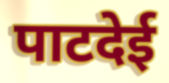
पाटदेई